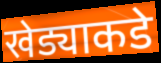
खेड्याकडे